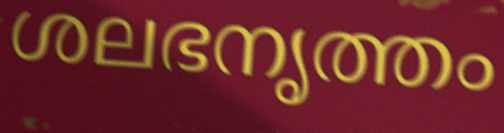
ശലഭനൃത്തം